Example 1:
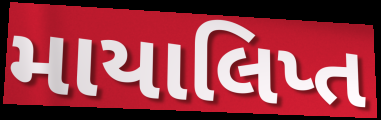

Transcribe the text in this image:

માયાલિપ્ત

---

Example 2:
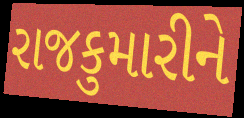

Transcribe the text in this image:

રાજકુમારીને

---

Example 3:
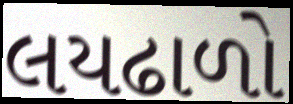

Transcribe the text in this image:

લયઢાળો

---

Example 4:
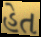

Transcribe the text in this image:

હેત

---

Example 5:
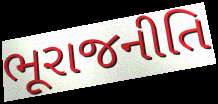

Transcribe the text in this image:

ભૂરાજનીતિ